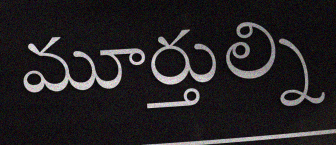
మూర్తుల్ని